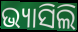
ଭ୍ୟାସିଲି